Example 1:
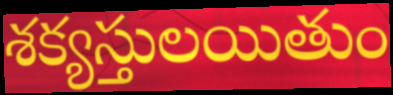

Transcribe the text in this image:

శక్యస్తులయితుం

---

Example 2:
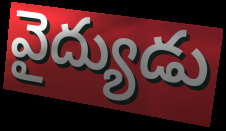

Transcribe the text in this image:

వైద్యుడు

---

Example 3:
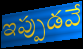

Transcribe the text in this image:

ఇప్పుడవే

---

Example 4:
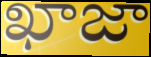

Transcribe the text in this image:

ఖాజా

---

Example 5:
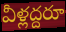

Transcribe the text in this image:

వీళ్లద్దరూ